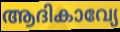
ആദികാവ്യേ